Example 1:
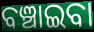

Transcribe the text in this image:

ବଞ୍ଚାଇବା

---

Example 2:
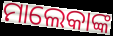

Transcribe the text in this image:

ମାଲେକାଙ୍କ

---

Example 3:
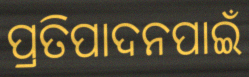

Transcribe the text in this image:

ପ୍ରତିପାଦନପାଇଁ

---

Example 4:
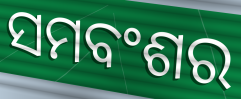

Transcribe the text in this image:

ସମବଂଶର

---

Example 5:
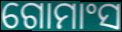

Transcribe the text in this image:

ଗୋମାଂସ